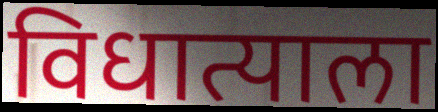
विधात्याला